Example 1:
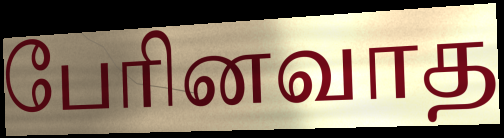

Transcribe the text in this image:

பேரினவாத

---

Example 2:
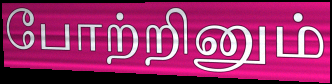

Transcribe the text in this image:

போற்றினும்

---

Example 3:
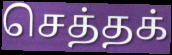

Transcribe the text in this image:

செத்தக்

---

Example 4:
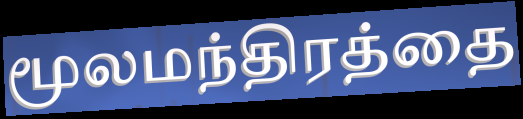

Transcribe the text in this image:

மூலமந்திரத்தை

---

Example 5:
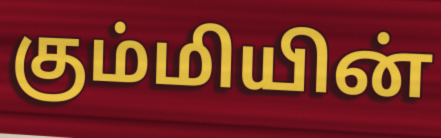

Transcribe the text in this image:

கும்மியின்